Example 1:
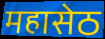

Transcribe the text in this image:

महासेठ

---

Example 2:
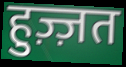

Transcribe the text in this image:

हुज़्ज़त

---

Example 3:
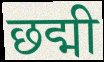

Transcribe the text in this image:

छद्मी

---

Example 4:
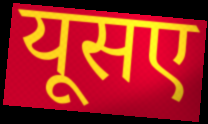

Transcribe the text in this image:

यूसए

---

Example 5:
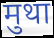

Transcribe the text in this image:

मुथा